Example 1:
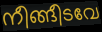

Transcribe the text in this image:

നീങ്ങീടവേ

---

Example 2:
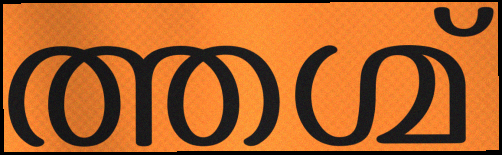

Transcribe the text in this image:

ത്തഗ്മ്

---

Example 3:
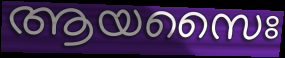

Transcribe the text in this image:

ആയസൈഃ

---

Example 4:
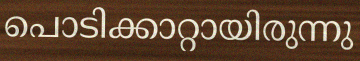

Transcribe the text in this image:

പൊടിക്കാറ്റായിരുന്നു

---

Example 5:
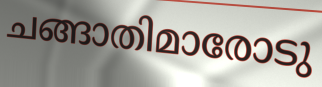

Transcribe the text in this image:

ചങ്ങാതിമാരോടു